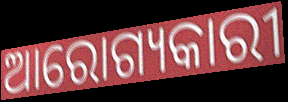
ଆରୋଗ୍ୟକାରୀ